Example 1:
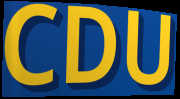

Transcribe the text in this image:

CDU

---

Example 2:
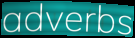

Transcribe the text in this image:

adverbs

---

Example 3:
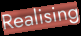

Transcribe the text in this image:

Realising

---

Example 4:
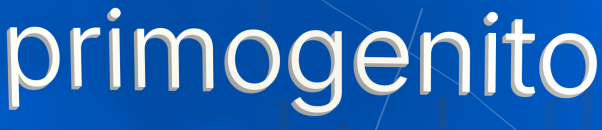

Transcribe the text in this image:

primogenito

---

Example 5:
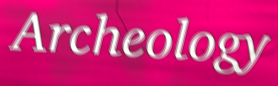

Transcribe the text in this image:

Archeology